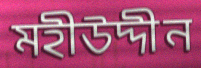
মহীউদ্দীন